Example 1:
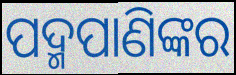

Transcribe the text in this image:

ପଦ୍ମପାଣିଙ୍କର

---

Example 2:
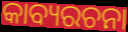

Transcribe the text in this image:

କାବ୍ୟରଚନା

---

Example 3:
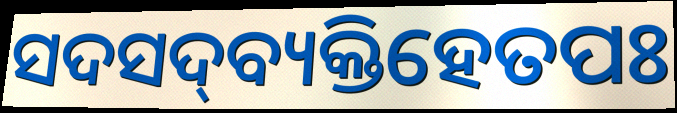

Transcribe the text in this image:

ସଦସଦ୍‌ବ୍ୟକ୍ତିହେତପଃ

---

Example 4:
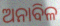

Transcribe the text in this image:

ଅନାବିଳ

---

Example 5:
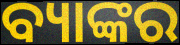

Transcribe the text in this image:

ବ୍ୟାଙ୍କର